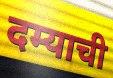
दम्याची